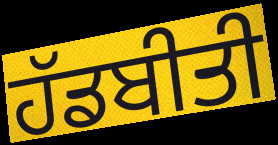
ਹੱਡਬੀਤੀ